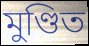
মুণ্ডিত